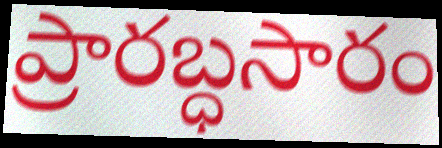
ప్రారబ్ధసారం